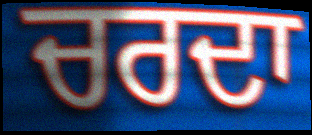
ਚਰਦਾ